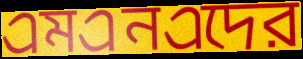
এমএনএদের